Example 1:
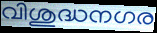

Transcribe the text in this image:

വിശുദ്ധനഗര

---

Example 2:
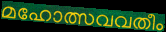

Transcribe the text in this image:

മഹോത്സവവതീം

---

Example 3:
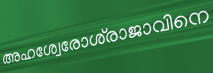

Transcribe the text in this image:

അഹശ്വേരോശ്‌രാജാവിനെ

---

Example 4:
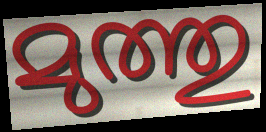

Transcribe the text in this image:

മുത്തു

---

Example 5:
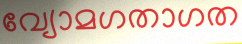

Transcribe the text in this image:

വ്യോമഗതാഗത